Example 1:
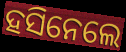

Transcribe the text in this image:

ହସିନେଲେ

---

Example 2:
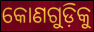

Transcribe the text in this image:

କୋଣଗୁଡ଼ିକୁ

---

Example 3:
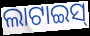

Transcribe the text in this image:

ଲାଟାଇସ୍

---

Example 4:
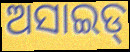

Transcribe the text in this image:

ଅସାଇଡ୍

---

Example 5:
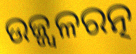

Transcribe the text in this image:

ଉଜ୍ଜ୍ୱଳରତ୍ନ